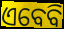
ଏବେବି